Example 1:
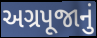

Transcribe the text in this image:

અગ્રપૂજાનું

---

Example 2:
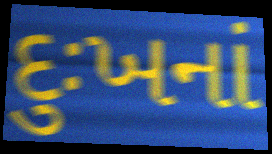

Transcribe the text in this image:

દુઃખનાં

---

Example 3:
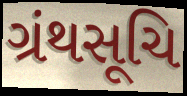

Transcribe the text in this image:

ગ્રંથસૂચિ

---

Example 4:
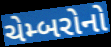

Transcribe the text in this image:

ચેમ્બરોનો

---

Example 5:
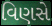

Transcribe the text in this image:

વિણસે